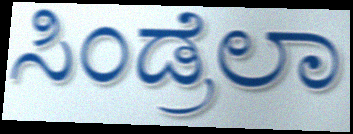
ಸಿಂಡ್ರೆಲಾ